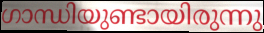
ഗാന്ധിയുണ്ടായിരുന്നു